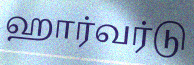
ஹார்வர்டு